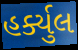
હર્ક્યુલ